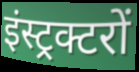
इंस्ट्रक्टरों